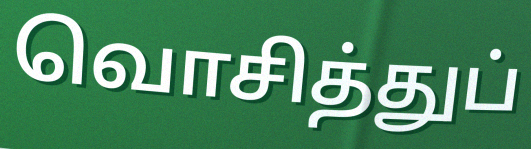
வொசித்துப்